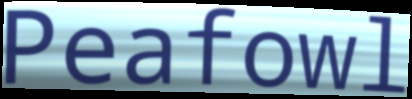
Peafowl